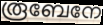
രൂബേനേ